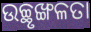
ଉଚ୍ଛୃଙ୍ଖଳତା